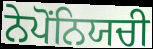
ਨੇਪੋਂਨਿਯਚੀ